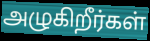
அழுகிறீர்கள்